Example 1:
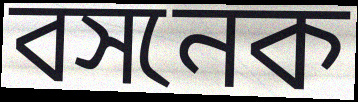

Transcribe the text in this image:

বসনেক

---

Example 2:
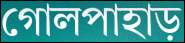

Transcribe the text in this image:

গোলপাহাড়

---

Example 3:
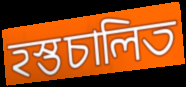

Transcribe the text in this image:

হস্তচালিত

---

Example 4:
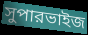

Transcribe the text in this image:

সুপারভাইজ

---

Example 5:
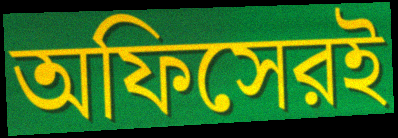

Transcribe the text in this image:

অফিসেরই